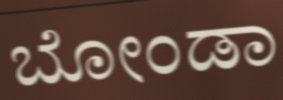
ಬೋಂಡಾ